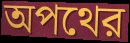
অপথের